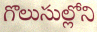
గొలుసుల్లోని